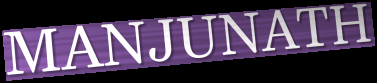
MANJUNATH